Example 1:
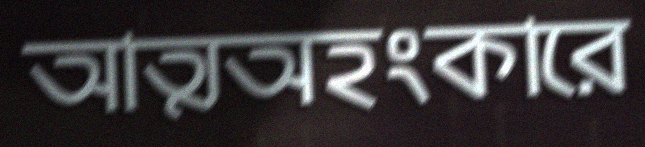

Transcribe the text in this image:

আত্মঅহংকারে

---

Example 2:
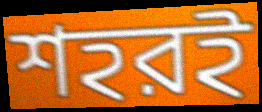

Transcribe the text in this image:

শহরই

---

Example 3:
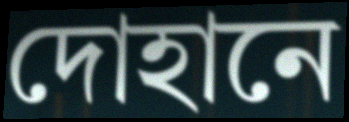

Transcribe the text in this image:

দোহানে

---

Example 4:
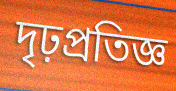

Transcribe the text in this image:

দৃঢ়প্রতিজ্ঞ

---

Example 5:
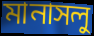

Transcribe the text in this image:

মানাসলু